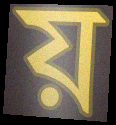
য়